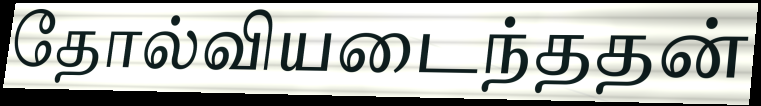
தோல்வியடைந்ததன்